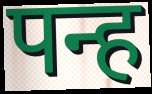
पन्ह